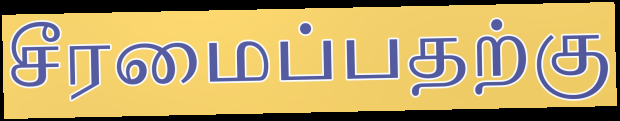
சீரமைப்பதற்கு